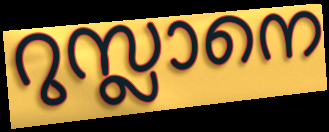
റുസ്ലാനെ